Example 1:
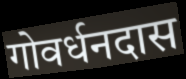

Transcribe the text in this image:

गोवर्धनदास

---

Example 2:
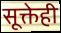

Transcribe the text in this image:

सूक्तेही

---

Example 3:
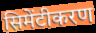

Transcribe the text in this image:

सिमेंटीकरण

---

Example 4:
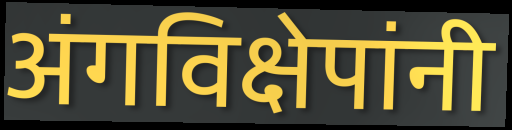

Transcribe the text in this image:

अंगविक्षेपांनी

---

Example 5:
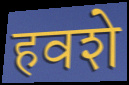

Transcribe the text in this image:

हवशे